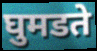
घुमडते